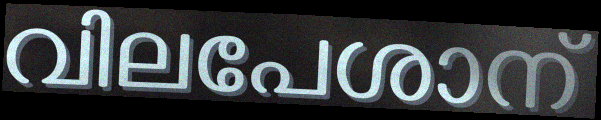
വിലപേശാന്